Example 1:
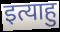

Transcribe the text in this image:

इत्याहु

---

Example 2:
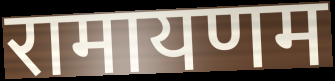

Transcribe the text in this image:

रामायणम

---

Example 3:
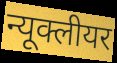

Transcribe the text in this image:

न्यूक्लीयर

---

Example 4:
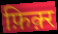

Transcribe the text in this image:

फ़िक़्र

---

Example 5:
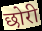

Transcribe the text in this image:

छोरी